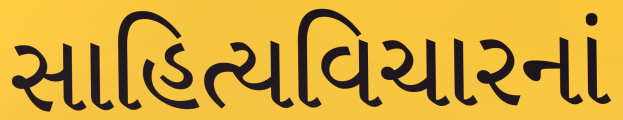
સાહિત્યવિચારનાં